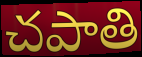
చపాతి